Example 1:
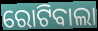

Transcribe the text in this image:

ରୋଟିବାଲା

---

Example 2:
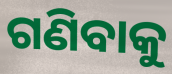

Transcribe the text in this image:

ଗଣିବାକୁ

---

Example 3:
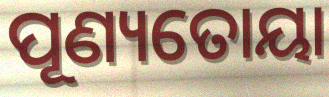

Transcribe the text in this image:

ପୂଣ୍ୟତୋୟା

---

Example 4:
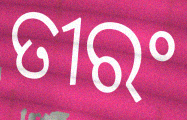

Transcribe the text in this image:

ତୀରଂ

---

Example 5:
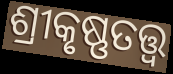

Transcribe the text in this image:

ଶ୍ରୀକୃଷ୍ଣତତ୍ତ୍ଵ